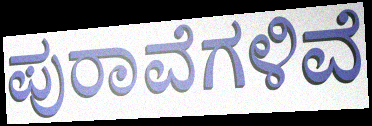
ಪುರಾವೆಗಳಿವೆ